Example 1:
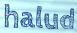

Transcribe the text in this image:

halud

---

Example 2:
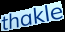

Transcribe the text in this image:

thakle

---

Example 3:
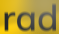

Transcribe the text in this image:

rad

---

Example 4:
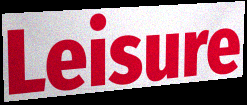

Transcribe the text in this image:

Leisure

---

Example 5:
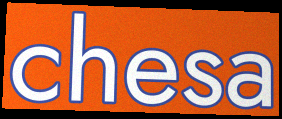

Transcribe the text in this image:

chesa